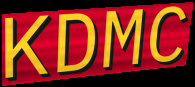
KDMC